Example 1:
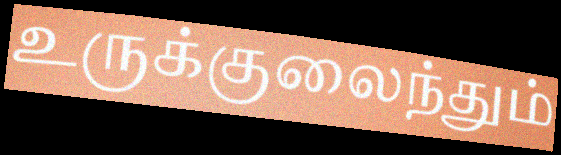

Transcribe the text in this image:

உருக்குலைந்தும்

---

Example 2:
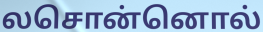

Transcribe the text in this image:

லசொன்னொல்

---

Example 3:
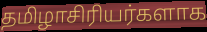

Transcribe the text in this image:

தமிழாசிரியர்களாக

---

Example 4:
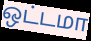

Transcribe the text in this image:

ஒட்டமா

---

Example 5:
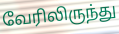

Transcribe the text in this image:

வேரிலிருந்து